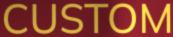
CUSTOM